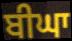
ਬੀਘਾ